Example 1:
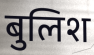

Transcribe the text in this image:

बुलिश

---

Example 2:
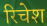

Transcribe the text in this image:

रिचेश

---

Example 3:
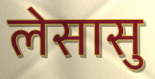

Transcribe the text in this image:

लेसासु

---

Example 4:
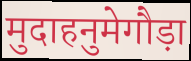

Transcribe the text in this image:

मुदाहनुमेगौड़ा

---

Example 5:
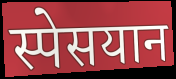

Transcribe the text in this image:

स्पेसयान